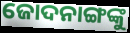
ଜୋଦନାଙ୍ଗଙ୍କୁ